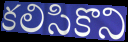
కలిసికొని